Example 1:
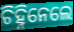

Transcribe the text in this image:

ଚିହ୍ନିନେଲେ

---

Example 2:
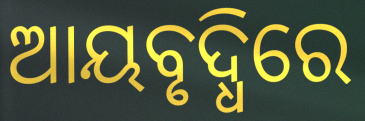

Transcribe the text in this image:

ଆୟବୃଦ୍ଧିରେ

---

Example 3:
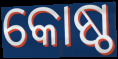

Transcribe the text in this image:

କୋଷ୍ଠ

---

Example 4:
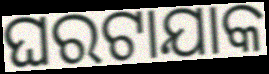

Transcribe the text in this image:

ଘରଟାଯାକ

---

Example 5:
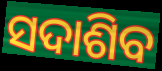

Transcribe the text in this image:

ସଦାଶିବ